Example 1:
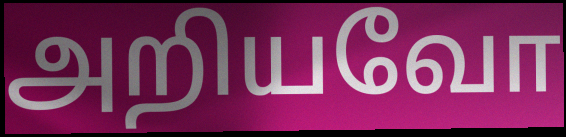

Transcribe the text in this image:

அறியவோ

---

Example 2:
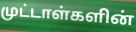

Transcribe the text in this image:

முட்டாள்களின்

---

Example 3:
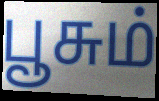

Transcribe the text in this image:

பூசும்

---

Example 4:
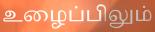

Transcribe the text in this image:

உழைப்பிலும்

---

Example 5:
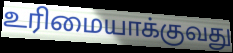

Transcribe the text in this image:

உரிமையாக்குவது